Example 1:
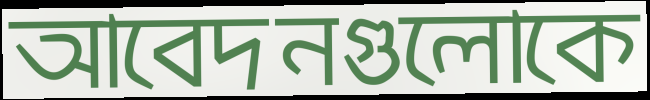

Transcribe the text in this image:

আবেদনগুলোকে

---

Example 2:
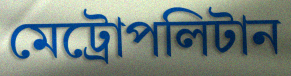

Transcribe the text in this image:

মেট্রোপলিটান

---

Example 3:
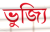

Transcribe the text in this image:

ভুজ্যি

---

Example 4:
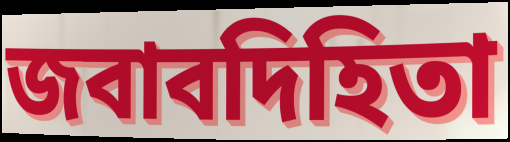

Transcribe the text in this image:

জবাবদিহিতা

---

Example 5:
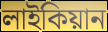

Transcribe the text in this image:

লাইকিয়ান